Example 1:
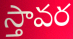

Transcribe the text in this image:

స్తావర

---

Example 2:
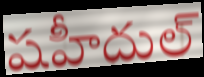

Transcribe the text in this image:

షహీదుల్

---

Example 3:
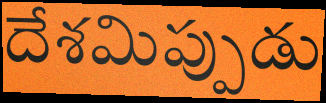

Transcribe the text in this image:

దేశమిప్పుడు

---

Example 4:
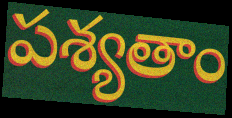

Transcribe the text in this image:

పశ్యతాం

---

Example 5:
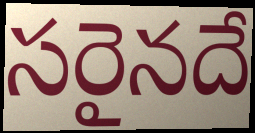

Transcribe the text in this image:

సరైనదే